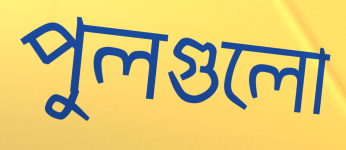
পুলগুলো